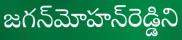
జగన్‌మోహన్‌రెడ్డిని